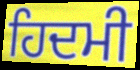
ਹਿਦਮੀ